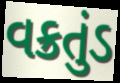
વક્રતુંડ